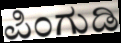
ಪಿಂಗುಡಿ